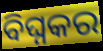
ବିଘ୍ନକର